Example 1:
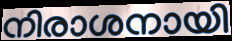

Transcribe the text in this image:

നിരാശനായി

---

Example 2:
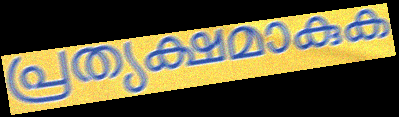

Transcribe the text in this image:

പ്രത്യക്ഷമാകുക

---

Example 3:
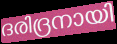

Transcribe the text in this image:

ദരിദ്രനായി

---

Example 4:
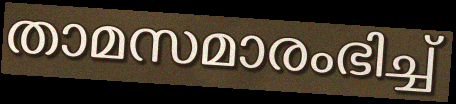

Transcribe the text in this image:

താമസമാരംഭിച്ച്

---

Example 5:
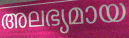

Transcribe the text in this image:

അലഭ്യമായ